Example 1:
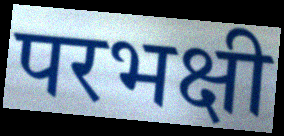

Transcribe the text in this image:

परभक्षी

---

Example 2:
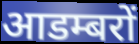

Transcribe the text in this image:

आडम्बरों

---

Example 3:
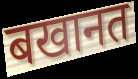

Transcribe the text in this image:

बखानत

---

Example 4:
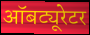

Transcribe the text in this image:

ऑबट्यूरेटर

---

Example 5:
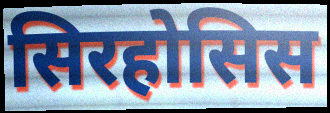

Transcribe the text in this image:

सिरहोसिस